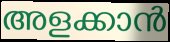
അളക്കാൻ